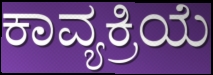
ಕಾವ್ಯಕ್ರಿಯೆ